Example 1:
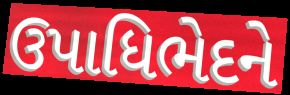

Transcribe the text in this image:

ઉપાધિભેદને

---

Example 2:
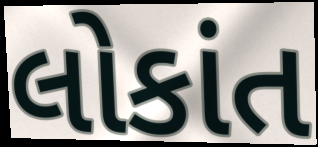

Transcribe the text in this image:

લોકાંત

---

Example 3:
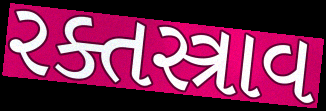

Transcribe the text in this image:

રક્તસ્ત્રાવ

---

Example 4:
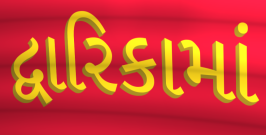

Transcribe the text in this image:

દ્વારિકામાં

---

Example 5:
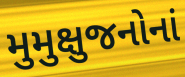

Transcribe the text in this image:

મુમુક્ષુજનોનાં